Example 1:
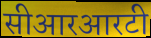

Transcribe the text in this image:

सीआरआरटी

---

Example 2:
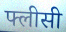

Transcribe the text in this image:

फ्लीसी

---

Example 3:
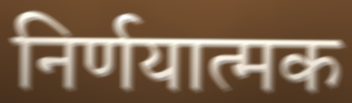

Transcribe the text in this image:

निर्णयात्मक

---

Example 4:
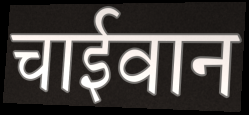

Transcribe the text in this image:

चाईवान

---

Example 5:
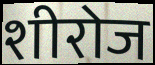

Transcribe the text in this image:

शीरोज